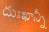
దుఃఖాన్నీ